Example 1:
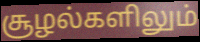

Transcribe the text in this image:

சூழல்களிலும்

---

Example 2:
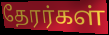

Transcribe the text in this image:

தேரர்கள்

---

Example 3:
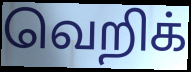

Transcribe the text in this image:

வெறிக்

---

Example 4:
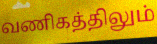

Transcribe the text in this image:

வணிகத்திலும்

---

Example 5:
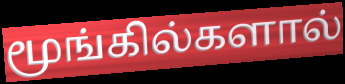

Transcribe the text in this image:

மூங்கில்களால்